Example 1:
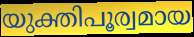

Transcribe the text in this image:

യുക്തിപൂര്വമായ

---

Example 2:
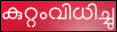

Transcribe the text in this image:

കുറ്റംവിധിച്ചു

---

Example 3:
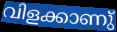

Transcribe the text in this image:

വിളക്കാണു്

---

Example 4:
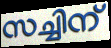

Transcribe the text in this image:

സച്ചിന്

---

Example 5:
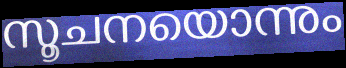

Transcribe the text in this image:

സൂചനയൊന്നും